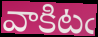
వాకిటఁ